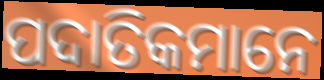
ପଦାତିକମାନେ